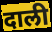
दाली